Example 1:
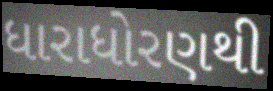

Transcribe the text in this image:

ધારાધોરણથી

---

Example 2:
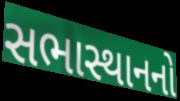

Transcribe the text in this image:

સભાસ્થાનનો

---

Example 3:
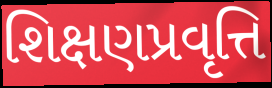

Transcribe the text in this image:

શિક્ષણપ્રવૃત્તિ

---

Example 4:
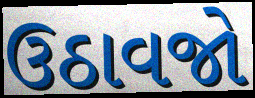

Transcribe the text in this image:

ઉઠાવજો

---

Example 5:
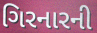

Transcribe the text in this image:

ગિરનારની